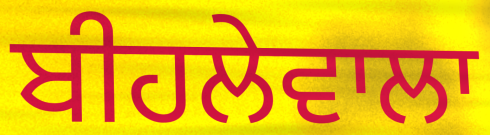
ਬੀਹਲੇਵਾਲਾ